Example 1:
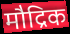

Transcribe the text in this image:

मौद्रिक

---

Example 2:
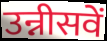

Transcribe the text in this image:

उन्नीसवें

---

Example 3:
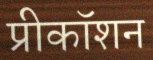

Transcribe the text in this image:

प्रीकॉशन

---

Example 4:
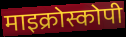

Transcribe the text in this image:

माइक्रोस्कोपी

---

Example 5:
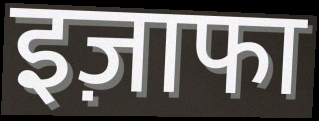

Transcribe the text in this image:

इज़ाफा